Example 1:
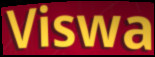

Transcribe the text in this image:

Viswa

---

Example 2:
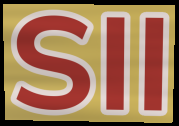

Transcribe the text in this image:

SII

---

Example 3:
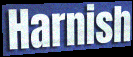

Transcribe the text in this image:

Harnish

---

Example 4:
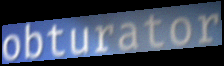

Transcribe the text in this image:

obturator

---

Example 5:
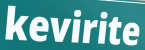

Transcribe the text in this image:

kevirite